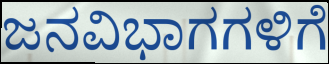
ಜನವಿಭಾಗಗಳಿಗೆ